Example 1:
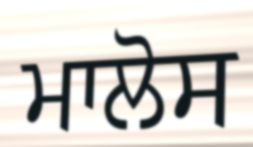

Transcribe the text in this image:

ਮਾਲੋਸ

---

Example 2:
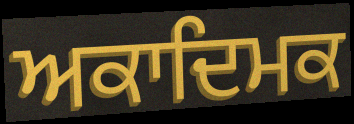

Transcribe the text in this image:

ਅਕਾਦਿਮਕ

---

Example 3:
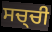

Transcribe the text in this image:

ਸਚ੍ਚੀ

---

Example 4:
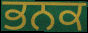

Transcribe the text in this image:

ਭਨਕ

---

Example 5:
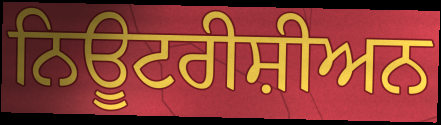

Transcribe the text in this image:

ਨਿਊਟਰੀਸ਼ੀਅਨ